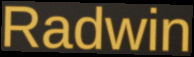
Radwin